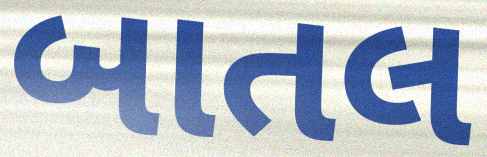
બાતલ